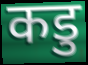
कडु